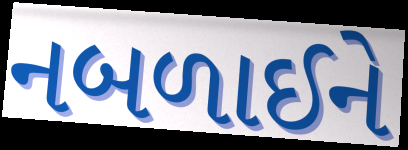
નબળાઈને